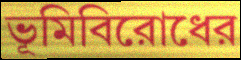
ভূমিবিরোধের